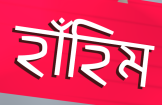
হাঁহিম